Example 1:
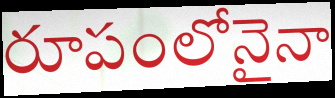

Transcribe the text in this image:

రూపంలోనైనా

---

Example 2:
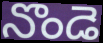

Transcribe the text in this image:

నొండె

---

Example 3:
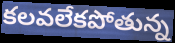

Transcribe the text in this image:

కలవలేకపోతున్న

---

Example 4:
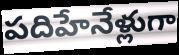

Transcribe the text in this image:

పదిహేనేళ్లుగా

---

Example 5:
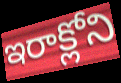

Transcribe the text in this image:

ఇరాక్లోని